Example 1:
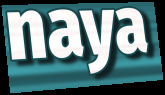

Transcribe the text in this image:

naya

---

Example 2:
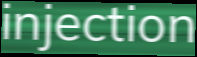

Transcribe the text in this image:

injection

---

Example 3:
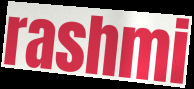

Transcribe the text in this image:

rashmi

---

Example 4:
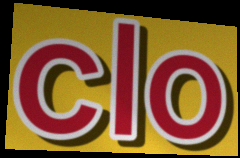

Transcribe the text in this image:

clo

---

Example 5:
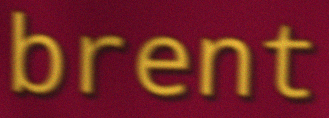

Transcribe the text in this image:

brent